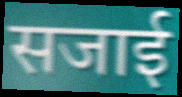
सजाई